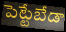
పెట్టేబేడా